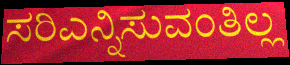
ಸರಿಎನ್ನಿಸುವಂತಿಲ್ಲ